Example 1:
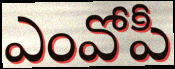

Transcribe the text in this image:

ఎంవోపీ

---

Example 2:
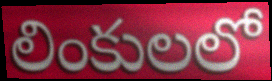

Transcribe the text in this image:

లింకులలో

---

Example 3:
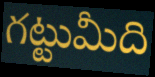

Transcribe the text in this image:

గట్టుమీది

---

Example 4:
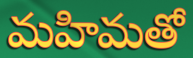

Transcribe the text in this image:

మహిమతో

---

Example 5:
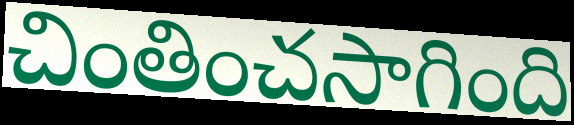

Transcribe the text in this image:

చింతించసాగింది